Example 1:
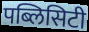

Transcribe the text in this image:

पब्लिसिटी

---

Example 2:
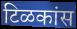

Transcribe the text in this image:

टिळकांस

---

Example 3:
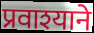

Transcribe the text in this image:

प्रवाश्याने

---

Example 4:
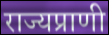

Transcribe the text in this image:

राज्यप्राणी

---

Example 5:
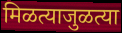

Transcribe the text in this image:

मिळत्याजुळत्या